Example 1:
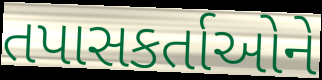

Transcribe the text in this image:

તપાસકર્તાઓને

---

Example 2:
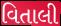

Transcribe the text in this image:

વિતાલી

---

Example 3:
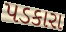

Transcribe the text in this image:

પડકારા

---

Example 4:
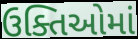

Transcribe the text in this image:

ઉક્તિઓમાં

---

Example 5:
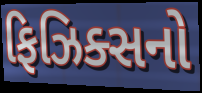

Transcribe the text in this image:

ફિઝિક્સનો